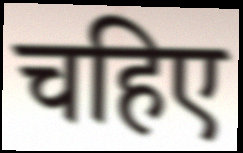
चहिए